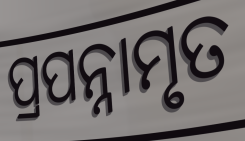
ପ୍ରପନ୍ନାମୃତ